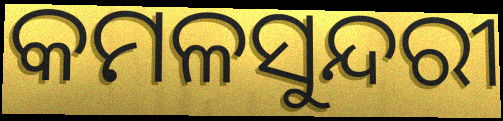
କମଳସୁନ୍ଦରୀ